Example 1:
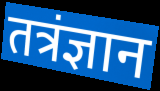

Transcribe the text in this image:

तत्रंज्ञान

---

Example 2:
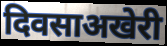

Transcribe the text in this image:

दिवसाअखेरी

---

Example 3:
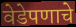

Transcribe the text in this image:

वेडेपणाचे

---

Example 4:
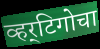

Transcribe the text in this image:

व्हर्टिगोचा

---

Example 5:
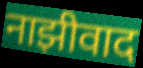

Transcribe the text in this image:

नाझीवाद